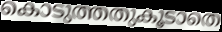
കൊടുത്തതുകൂടാതെ